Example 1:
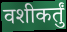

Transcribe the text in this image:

वशीकर्तुं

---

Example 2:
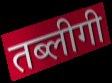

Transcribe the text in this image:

तब्‍लीगी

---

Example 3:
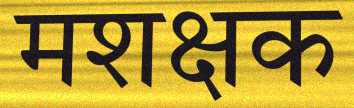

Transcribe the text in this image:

मशक्षक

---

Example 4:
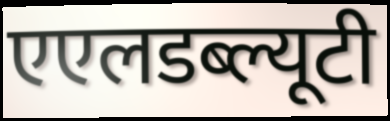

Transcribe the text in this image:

एएलडब्ल्यूटी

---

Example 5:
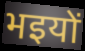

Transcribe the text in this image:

भइयों